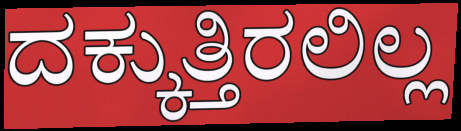
ದಕ್ಕುತ್ತಿರಲಿಲ್ಲ